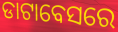
ଡାଟାବେସରେ